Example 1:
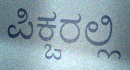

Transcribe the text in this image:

ಪಿಕ್ಚರಲ್ಲಿ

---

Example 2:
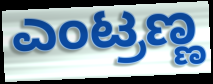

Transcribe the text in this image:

ಎಂಟ್ರಣ್ಣ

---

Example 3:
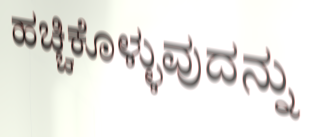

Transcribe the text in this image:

ಹಚ್ಚಿಕೊಳ್ಳುವುದನ್ನು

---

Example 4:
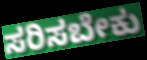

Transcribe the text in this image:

ಸರಿಸಬೇಕು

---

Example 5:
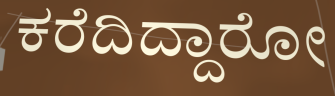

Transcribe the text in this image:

ಕರೆದಿದ್ದಾರೋ